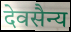
देवसैन्य